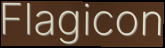
Flagicon